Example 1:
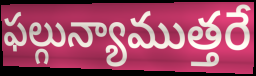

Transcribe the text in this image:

ఫల్గున్యాముత్తరే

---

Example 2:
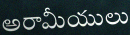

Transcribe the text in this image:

అరామీయులు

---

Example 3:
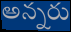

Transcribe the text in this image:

అన్నరు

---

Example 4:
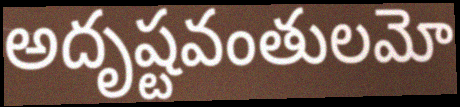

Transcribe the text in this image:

అదృష్టవంతులమో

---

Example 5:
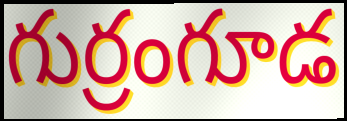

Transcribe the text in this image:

గుర్రంగూడ